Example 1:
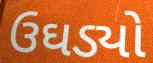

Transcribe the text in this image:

ઉઘડ્યો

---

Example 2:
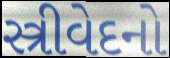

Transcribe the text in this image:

સ્ત્રીવેદનો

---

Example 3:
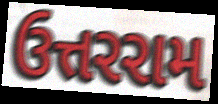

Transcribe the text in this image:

ઉત્તરરામ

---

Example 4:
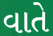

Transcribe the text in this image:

વાતે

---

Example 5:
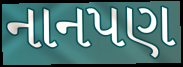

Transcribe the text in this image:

નાનપણ